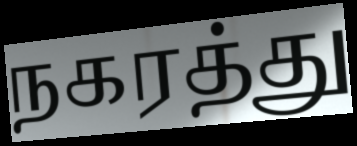
நகரத்து